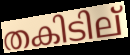
തകിടില്